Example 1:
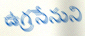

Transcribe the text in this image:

ఉగ్రసేనుని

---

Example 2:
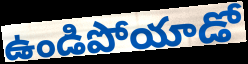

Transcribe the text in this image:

ఉండిపోయాడో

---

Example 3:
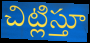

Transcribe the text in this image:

చిట్లిస్తూ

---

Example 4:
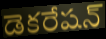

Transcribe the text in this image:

డెకరేషన్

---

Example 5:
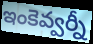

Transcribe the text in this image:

ఇంకెవ్వర్నీ